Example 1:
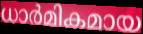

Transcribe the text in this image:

ധാർമികമായ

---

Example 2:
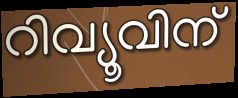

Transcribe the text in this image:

റിവ്യൂവിന്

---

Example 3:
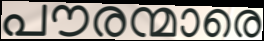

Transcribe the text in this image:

പൗരന്മാരെ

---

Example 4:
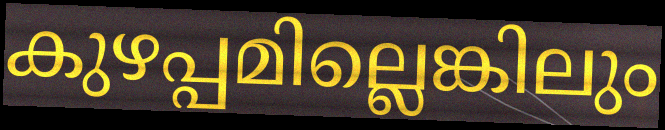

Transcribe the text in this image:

കുഴപ്പമില്ലെങ്കിലും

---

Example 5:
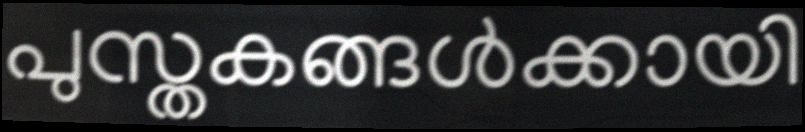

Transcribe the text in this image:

പുസ്തകങ്ങൾക്കായി